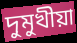
দুমুখীয়া